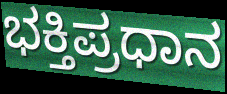
ಭಕ್ತಿಪ್ರಧಾನ